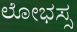
ಲೋಭಸ್ಸ